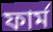
ফার্ম